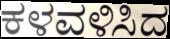
ಕಳವಳಿಸಿದ